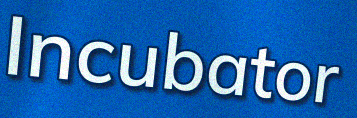
Incubator